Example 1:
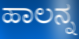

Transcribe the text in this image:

ಹಾಲನ್ನ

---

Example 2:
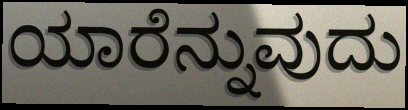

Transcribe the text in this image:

ಯಾರೆನ್ನುವುದು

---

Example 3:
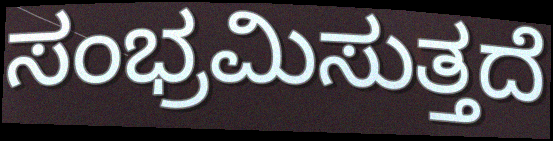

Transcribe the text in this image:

ಸಂಭ್ರಮಿಸುತ್ತದೆ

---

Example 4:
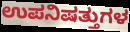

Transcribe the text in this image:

ಉಪನಿಷತ್ತುಗಳ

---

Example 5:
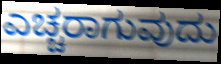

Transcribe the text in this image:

ಎಚ್ಚರಾಗುವುದು